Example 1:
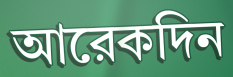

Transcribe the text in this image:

আরেকদিন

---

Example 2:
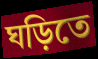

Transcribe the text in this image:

ঘড়িতে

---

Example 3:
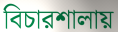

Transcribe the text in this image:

বিচারশালায়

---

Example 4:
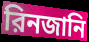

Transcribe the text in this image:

রিনজানি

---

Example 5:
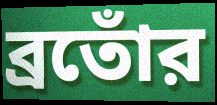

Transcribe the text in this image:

ব্রতোঁর